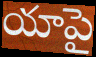
యాపై